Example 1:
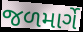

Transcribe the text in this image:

જળમાર્ગે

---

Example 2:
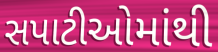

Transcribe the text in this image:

સપાટીઓમાંથી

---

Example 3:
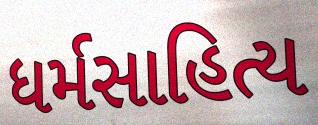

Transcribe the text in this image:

ધર્મસાહિત્ય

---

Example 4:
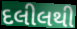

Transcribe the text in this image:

દલીલથી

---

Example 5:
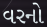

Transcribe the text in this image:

વરનો